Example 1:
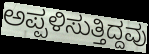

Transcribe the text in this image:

ಅಪ್ಪಳಿಸುತ್ತಿದ್ದವು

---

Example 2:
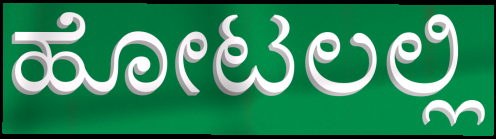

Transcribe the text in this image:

ಹೋಟಲಲ್ಲಿ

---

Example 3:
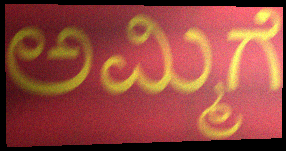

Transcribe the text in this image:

ಅಮ್ಮಿಗೆ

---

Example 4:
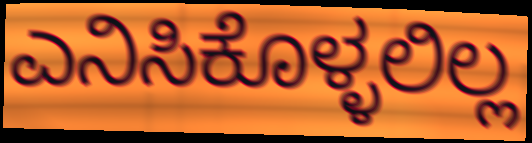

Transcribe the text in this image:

ಎನಿಸಿಕೊಳ್ಳಲಿಲ್ಲ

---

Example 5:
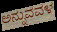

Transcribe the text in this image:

ಅನ್ನುವವಳ